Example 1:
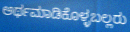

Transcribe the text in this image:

ಅರ್ಥಮಾಡಿಕೊಳ್ಳಬಲ್ಲರು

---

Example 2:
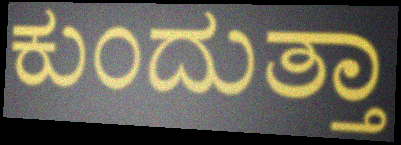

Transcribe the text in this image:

ಕುಂದುತ್ತಾ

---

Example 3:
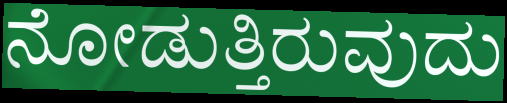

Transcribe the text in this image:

ನೋಡುತ್ತಿರುವುದು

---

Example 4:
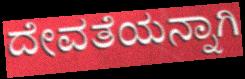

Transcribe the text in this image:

ದೇವತೆಯನ್ನಾಗಿ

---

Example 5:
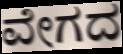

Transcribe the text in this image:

ವೇಗದ